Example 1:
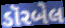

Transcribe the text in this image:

ડૉરબેલ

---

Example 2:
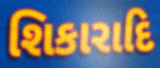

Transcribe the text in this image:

શિકારાદિ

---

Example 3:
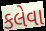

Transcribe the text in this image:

કલેવા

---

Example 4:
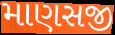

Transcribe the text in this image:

માણસજી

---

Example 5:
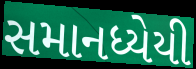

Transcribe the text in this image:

સમાનધ્યેયી